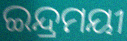
ଇନ୍ଦ୍ରମୟୀ